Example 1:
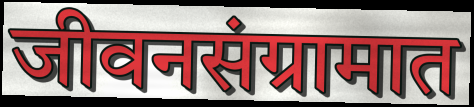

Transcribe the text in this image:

जीवनसंग्रामात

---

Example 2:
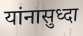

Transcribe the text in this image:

यांनासुध्दा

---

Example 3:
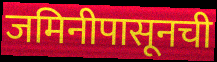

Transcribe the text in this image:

जमिनीपासूनची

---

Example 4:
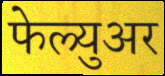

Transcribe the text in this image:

फेल्युअर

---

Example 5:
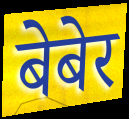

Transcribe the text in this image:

बेबेर